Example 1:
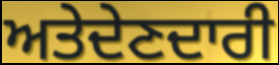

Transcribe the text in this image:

ਅਤੇਦੇਣਦਾਰੀ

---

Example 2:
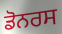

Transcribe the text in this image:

ਡੋਨਰਸ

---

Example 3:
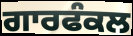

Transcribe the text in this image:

ਗਾਰਫੰਕਲ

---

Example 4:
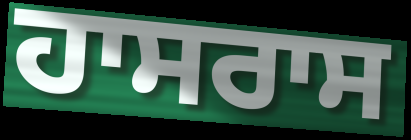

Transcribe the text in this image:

ਹਾਸਰਾਸ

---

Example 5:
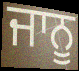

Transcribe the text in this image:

ਜਾਨੂ